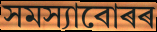
সমস্যাবোৰৰ